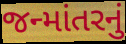
જન્માંતરનું